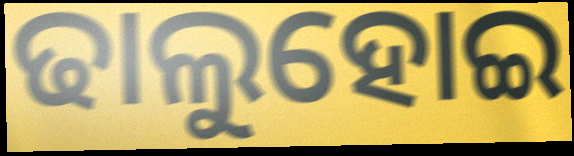
ଢାଲୁହୋଇ